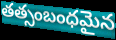
తత్సంబంధమైన